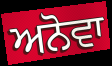
ਅਨੋਵਾ